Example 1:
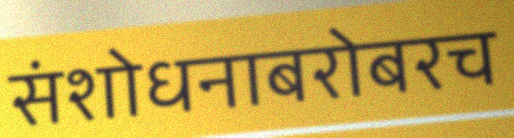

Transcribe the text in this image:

संशोधनाबरोबरच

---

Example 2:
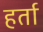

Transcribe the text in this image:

हर्ता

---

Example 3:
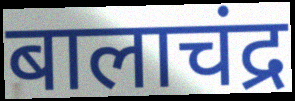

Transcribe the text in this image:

बालाचंद्र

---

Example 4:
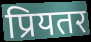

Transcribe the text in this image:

प्रियतर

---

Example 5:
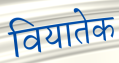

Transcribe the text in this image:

वियातेक